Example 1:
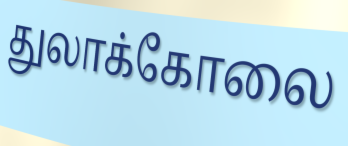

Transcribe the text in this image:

துலாக்கோலை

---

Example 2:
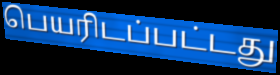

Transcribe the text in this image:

பெயரிடப்பட்டது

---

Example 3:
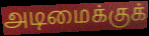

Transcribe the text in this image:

அடிமைக்குக்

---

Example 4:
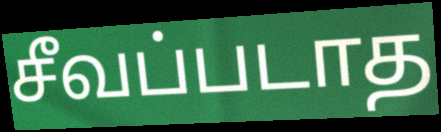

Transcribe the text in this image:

சீவப்படாத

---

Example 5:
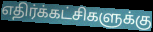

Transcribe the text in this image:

எதிர்க்கட்சிகளுக்கு